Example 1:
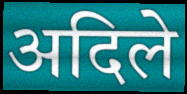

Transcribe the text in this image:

अदिले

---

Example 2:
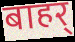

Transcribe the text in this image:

बाहर्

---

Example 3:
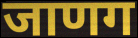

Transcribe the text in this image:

जाणग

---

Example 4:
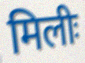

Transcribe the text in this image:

मिलीः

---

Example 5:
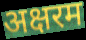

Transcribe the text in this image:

अक्षरम